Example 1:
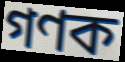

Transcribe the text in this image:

গণক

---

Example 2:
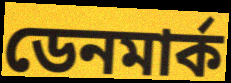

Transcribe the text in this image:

ডেনমাৰ্ক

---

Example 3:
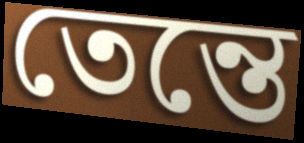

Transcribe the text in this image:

তেন্তে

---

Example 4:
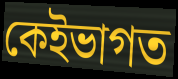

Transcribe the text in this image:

কেইভাগত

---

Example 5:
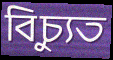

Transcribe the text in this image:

বিচ্যুত